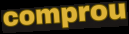
comprou